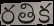
రతిక